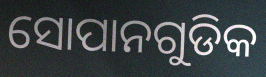
ସୋପାନଗୁଡିକ